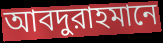
আবদুরাহমানে